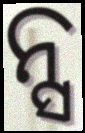
ନ୍ସ